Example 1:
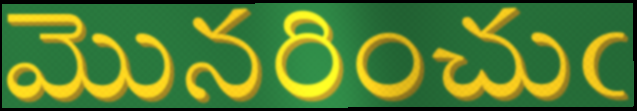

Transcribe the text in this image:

మొనరించుఁ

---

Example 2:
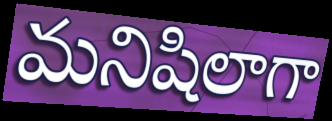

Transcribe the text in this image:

మనిషిలాగా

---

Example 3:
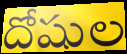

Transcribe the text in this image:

దోషుల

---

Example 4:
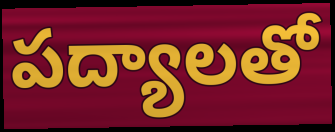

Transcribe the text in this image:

పద్యాలతో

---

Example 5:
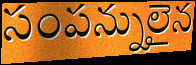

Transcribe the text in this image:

సంపన్నులైన